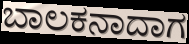
ಬಾಲಕನಾದಾಗ